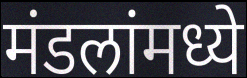
मंडलांमध्ये